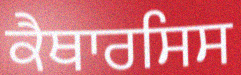
ਕੈਥਾਰਸਿਸ